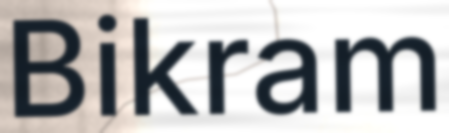
Bikram